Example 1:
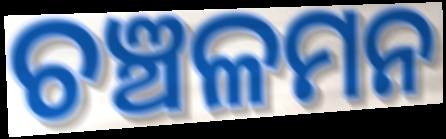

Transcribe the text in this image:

ଚଞ୍ଚଳମନ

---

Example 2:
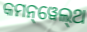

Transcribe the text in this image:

କମନ୍‌ୱେଲ୍‌ଥ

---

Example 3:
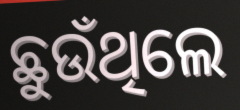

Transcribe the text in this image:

ଛୁଉଁଥିଲେ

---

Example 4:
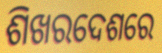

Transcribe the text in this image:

ଶିଖରଦେଶରେ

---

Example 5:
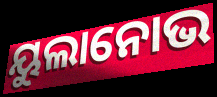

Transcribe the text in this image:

ୟୁଲାନୋଭ